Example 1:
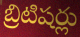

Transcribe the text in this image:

బ్రిటిషర్లు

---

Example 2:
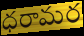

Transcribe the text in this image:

ధరామర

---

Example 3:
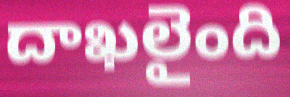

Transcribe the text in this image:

దాఖలైంది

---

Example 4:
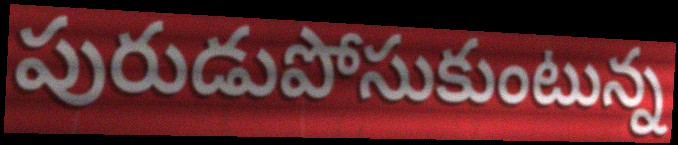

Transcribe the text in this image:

పురుడుపోసుకుంటున్న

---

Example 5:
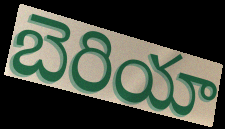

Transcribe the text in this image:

బెరియా